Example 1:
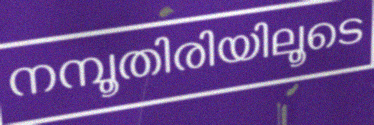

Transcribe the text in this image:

നമ്പൂതിരിയിലൂടെ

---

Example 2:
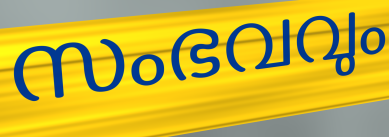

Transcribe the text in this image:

സംഭവവും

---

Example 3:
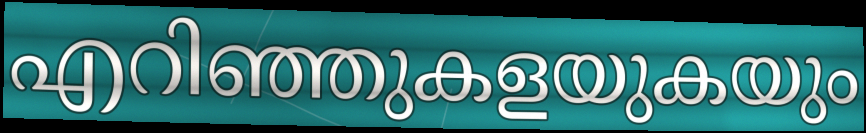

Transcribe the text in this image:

എറിഞ്ഞുകളയുകയും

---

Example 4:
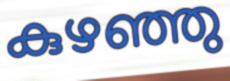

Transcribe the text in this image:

കുഴഞ്ഞു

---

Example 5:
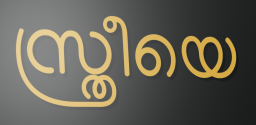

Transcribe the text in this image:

സ്ത്രീയെ